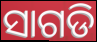
ସାଗଡି